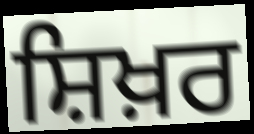
ਸ਼ਿਖ਼ਰ